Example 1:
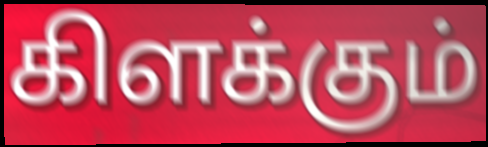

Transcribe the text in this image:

கிளக்கும்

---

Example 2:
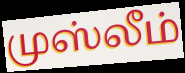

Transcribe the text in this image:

முஸ்லீம்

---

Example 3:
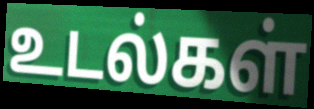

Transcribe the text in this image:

உடல்கள்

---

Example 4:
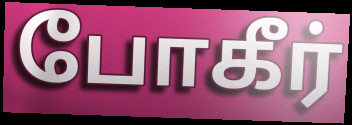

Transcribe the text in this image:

போகீர்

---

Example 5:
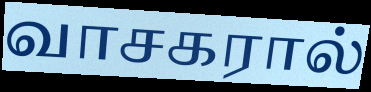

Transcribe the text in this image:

வாசகரால்